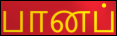
பானப்